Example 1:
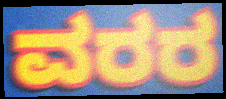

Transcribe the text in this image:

ವರರ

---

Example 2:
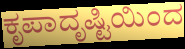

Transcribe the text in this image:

ಕೃಪಾದೃಷ್ಟಿಯಿಂದ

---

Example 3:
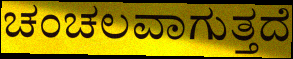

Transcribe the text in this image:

ಚಂಚಲವಾಗುತ್ತದೆ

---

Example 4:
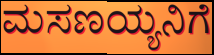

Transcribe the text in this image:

ಮಸಣಯ್ಯನಿಗೆ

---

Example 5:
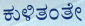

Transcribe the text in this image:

ಕುಳಿತಂತೇ